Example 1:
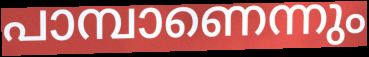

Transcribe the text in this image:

പാമ്പാണെന്നും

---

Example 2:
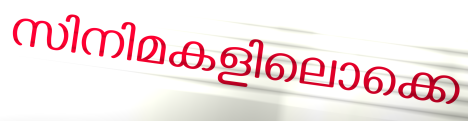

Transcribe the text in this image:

സിനിമകളിലൊക്കെ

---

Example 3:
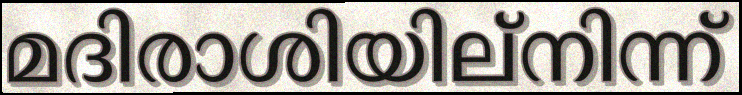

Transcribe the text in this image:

മദിരാശിയില്നിന്ന്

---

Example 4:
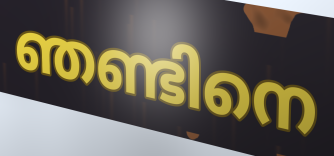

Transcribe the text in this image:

ഞണ്ടിനെ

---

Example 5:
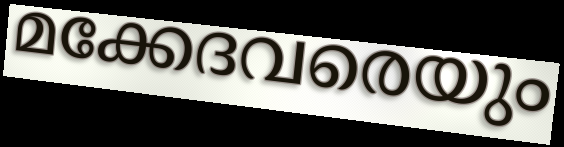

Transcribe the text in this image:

മക്കേദവരെയും